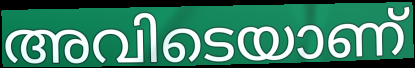
അവിടെയാണ്